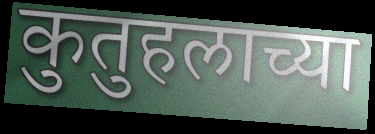
कुतुहलाच्या